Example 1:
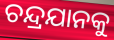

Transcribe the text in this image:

ଚନ୍ଦ୍ରଯାନକୁ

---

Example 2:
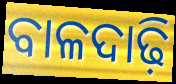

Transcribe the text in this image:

ବାଳଦାଢ଼ି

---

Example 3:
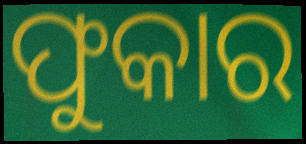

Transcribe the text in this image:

ଫୁକାର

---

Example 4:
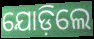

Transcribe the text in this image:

ଯୋଡ଼ିଲେ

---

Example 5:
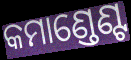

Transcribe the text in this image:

କମାଣ୍ଡେଣ୍ଟ